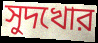
সুদখোর